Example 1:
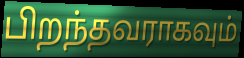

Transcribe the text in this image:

பிறந்தவராகவும்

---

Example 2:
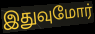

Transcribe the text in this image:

இதுவுமோர்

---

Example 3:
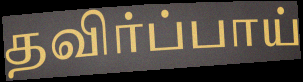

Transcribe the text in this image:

தவிர்ப்பாய்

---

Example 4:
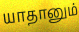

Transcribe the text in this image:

யாதானும்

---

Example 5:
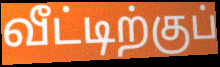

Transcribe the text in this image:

வீட்டிற்குப்